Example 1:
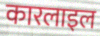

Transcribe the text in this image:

कारलाइल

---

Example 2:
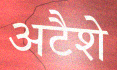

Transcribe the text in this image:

अटैशे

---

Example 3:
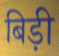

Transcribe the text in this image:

बिड़ी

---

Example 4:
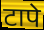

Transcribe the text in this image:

टापे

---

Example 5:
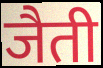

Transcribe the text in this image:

जैती